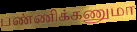
பண்ணிக்கணுமா